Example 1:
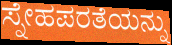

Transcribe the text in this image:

ಸ್ನೇಹಪರತೆಯನ್ನು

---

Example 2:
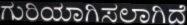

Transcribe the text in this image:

ಗುರಿಯಾಗಿಸಲಾಗಿದೆ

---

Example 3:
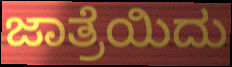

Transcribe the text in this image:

ಜಾತ್ರೆಯಿದು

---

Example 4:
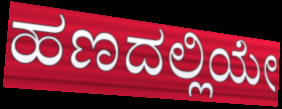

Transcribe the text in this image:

ಹಣದಲ್ಲಿಯೇ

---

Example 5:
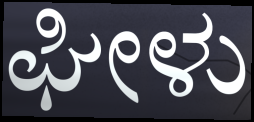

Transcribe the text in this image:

ಘೀಳು